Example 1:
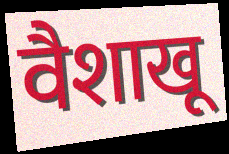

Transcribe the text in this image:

वैशाखू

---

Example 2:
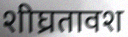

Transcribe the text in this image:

शीघ्रतावश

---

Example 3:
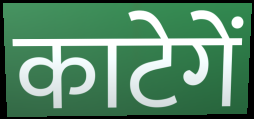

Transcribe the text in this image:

काटेगें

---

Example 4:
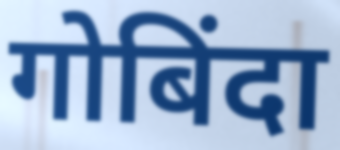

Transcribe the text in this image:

गोबिंदा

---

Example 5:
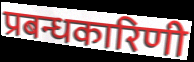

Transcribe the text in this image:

प्रबन्धकारिणी